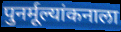
पुनर्मूल्यांकनाला